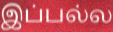
இப்பல்ல